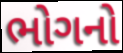
ભોગનો